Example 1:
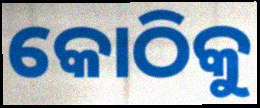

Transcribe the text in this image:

କୋଠିକୁ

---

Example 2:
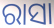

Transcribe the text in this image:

ରାସା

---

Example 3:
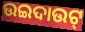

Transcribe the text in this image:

ଉଇଦାଉଟ୍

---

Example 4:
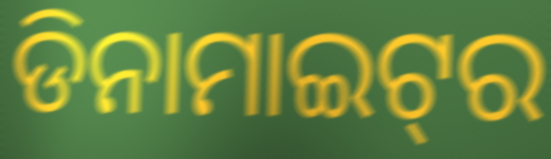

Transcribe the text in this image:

ଡିନାମାଇଟ୍‌ର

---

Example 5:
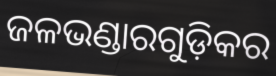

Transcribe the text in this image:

ଜଳଭଣ୍ଡାରଗୁଡ଼ିକର